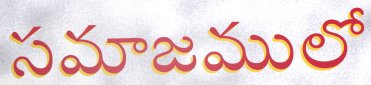
సమాజములో